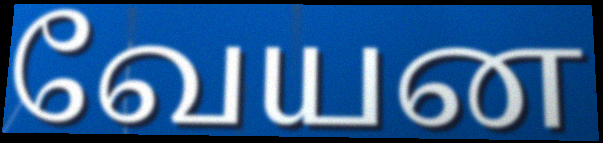
வேயன